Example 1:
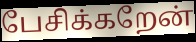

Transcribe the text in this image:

பேசிக்கறேன்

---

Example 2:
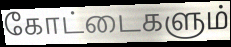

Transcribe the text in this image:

கோட்டைகளும்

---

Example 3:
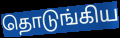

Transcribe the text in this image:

தொடுங்கிய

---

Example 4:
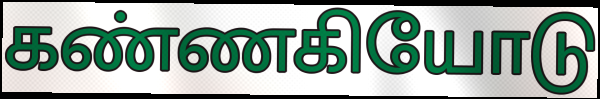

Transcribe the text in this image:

கண்ணகியோடு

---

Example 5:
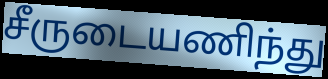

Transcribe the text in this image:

சீருடையணிந்து